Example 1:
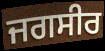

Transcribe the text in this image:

ਜਗਸੀਰ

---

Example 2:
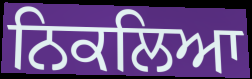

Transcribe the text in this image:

ਨਿਕਲਿਆ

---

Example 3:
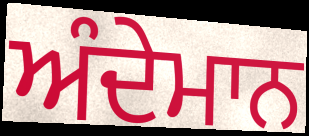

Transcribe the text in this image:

ਅੰਦੇਮਾਨ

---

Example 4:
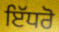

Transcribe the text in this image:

ਇੱਧਰੋ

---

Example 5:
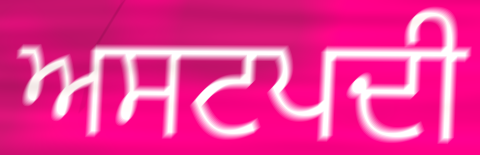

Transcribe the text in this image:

ਅਸਟਪਦੀ